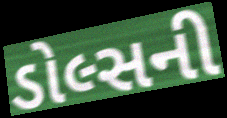
ડોલ્સની